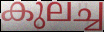
കുലച്ച